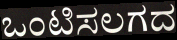
ಒಂಟಿಸಲಗದ